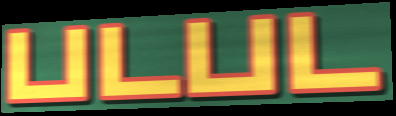
படபட